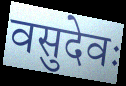
वसुदेवः